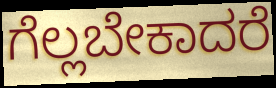
ಗೆಲ್ಲಬೇಕಾದರೆ